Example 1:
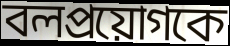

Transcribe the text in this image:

বলপ্রয়োগকে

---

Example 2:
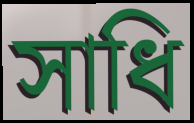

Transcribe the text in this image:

সাধি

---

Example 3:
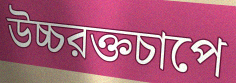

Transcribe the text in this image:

উচ্চরক্তচাপে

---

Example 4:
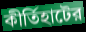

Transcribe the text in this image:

কীর্তিহাটের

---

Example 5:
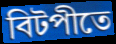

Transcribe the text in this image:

বিটপীতে